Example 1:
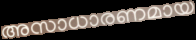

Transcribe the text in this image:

അസാധാരണമായ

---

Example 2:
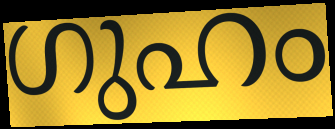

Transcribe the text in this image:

ഗുഹം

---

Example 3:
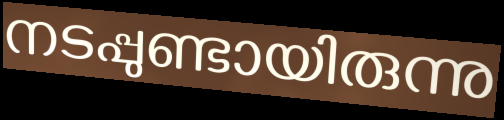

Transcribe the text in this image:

നടപ്പുണ്ടായിരുന്നു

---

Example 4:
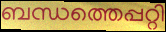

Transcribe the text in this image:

ബന്ധത്തെപ്പറ്റി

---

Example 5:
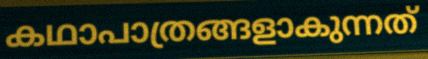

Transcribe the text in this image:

കഥാപാത്രങ്ങളാകുന്നത്